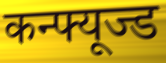
कन्फ्यूज्ड